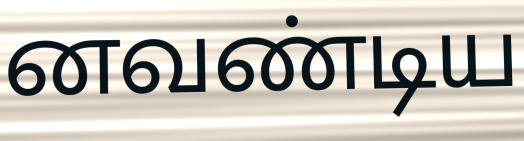
னவண்டிய